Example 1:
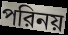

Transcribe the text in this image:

পরিনয়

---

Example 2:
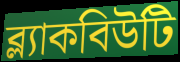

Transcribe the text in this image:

ব্ল্যাকবিউটি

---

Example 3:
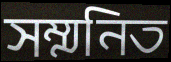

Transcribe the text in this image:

সম্মনিত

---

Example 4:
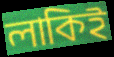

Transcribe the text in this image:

লাকিই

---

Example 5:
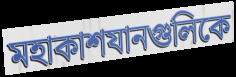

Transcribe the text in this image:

মহাকাশযানগুলিকে